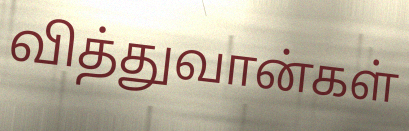
வித்துவான்கள்